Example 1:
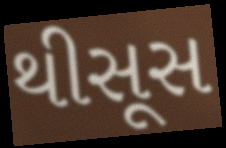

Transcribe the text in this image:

થીસૂસ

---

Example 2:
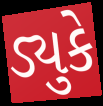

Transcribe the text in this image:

ડ્યુકે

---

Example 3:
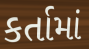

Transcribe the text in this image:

કર્તામાં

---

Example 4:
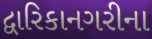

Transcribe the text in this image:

દ્વારિકાનગરીના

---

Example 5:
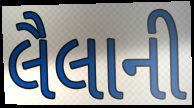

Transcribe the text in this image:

લૈલાની